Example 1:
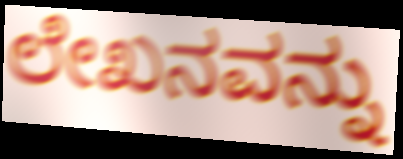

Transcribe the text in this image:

ಲೇಖನವನ್ನು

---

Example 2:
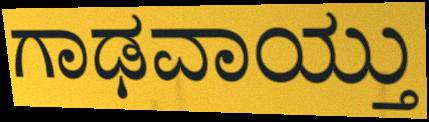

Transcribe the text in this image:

ಗಾಢವಾಯ್ತು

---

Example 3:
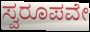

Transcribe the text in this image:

ಸ್ವರೂಪವೇ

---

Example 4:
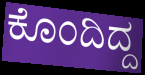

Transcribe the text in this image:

ಕೊಂದಿದ್ದ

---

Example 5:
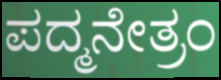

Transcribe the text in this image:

ಪದ್ಮನೇತ್ರಂ